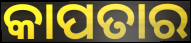
କାପତାର